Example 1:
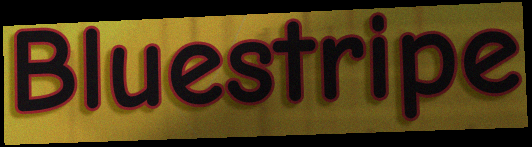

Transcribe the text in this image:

Bluestripe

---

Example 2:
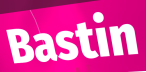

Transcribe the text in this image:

Bastin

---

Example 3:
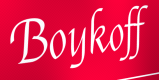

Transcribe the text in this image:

Boykoff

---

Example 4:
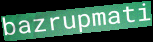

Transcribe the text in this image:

bazrupmati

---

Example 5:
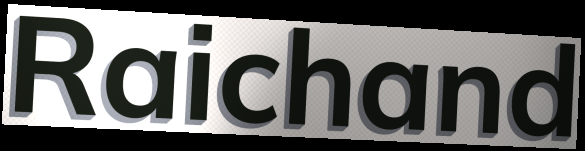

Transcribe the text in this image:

Raichand